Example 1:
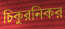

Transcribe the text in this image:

চিকুরনিকর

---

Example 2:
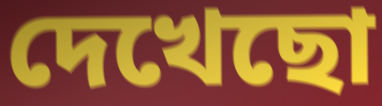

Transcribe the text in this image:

দেখেছো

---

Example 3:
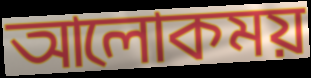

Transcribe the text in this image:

আলোকময়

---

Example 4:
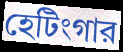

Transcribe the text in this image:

হেটিংগার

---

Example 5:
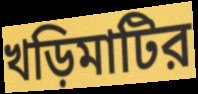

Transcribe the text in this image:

খড়িমাটির